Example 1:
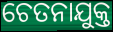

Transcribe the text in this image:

ଚେତନାଯୁକ୍ତ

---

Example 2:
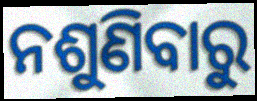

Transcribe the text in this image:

ନଶୁଣିବାରୁ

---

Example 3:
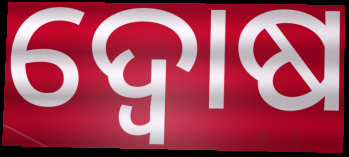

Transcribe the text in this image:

ଦ୍ୱୋଷ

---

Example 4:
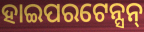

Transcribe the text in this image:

ହାଇପରଟେନ୍ସନ୍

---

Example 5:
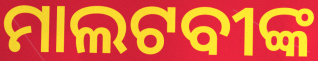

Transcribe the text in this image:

ମାଲଟବୀଙ୍କ